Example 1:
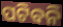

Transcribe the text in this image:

ପଟିବନି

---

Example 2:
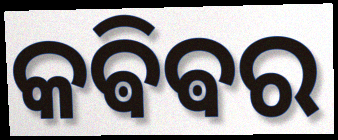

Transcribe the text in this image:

କଵିଵର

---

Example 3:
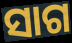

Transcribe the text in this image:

ସାଗ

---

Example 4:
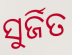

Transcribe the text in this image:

ସୁର୍ଜିତ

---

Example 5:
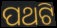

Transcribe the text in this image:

ପଥଟି